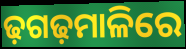
ଢ଼ଗଢ଼ମାଳିରେ